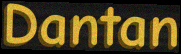
Dantan